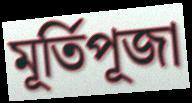
মূর্তিপূজা